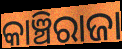
କାଞ୍ଚିରାଜା